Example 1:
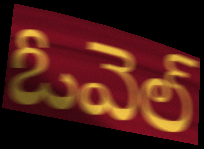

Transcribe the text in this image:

ఓవెల్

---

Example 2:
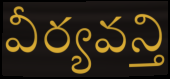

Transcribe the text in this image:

వీర్యవన్తి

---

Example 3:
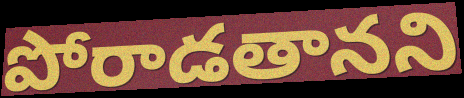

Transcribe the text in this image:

పోరాడతానని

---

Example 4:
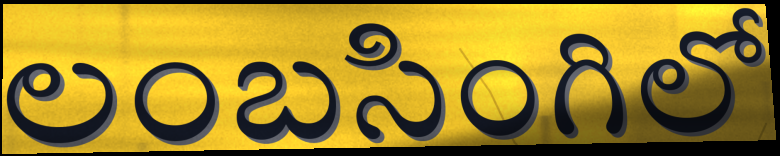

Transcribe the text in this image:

లంబసింగిలో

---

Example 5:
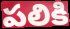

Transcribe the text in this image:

పలికి